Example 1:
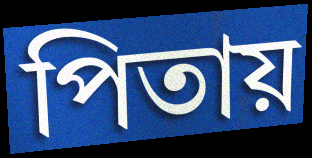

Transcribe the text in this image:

পিতায়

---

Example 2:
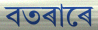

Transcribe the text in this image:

বতৰাৰে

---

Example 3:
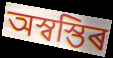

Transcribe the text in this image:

অস্বস্তিৰ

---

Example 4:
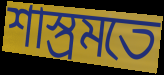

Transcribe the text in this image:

শাস্ত্ৰমতে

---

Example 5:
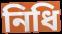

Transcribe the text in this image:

নিধি